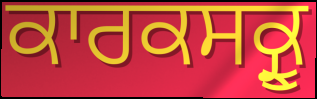
ਕਾਰਕਸਕ੍ਰੂ